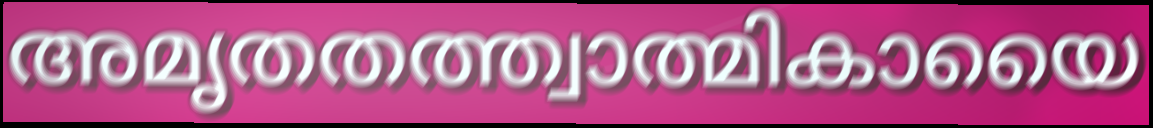
അമൃതതത്ത്വാത്മികായൈ